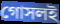
গোসলই